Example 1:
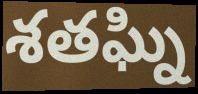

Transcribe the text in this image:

శతఘ్ని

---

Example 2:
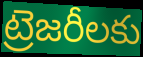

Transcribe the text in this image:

ట్రెజరీలకు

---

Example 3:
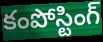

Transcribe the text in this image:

కంపోస్టింగ్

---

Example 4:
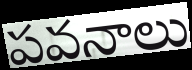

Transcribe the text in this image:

పవనాలు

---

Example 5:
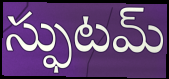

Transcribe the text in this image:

స్ఫుటమ్